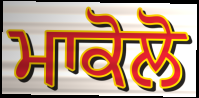
ਮਾਕੋਲੋ